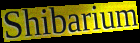
Shibarium